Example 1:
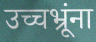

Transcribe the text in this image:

उच्चभ्रूंना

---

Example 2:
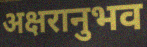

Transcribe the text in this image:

अक्षरानुभव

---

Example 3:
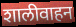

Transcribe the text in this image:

शालीवाहन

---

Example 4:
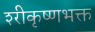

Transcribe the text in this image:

श्रीकृष्णभक्त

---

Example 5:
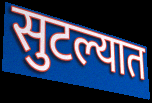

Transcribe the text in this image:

सुटल्यात